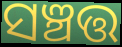
ସଞ୍ଚତ୍ତ